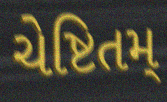
ચેષ્ટિતમ્